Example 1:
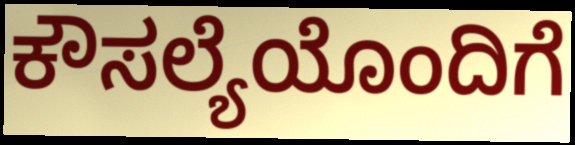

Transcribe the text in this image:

ಕೌಸಲ್ಯೆಯೊಂದಿಗೆ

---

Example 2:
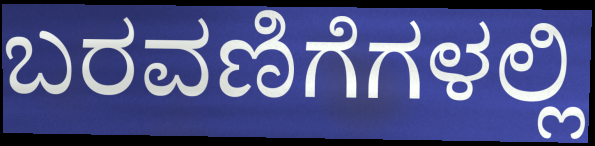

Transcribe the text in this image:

ಬರವಣಿಗೆಗಳಲ್ಲಿ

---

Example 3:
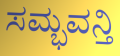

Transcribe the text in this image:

ಸಮ್ಭವನ್ತಿ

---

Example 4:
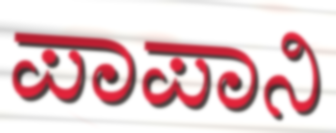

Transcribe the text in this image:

ಪಾಪಾನಿ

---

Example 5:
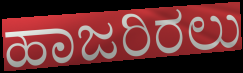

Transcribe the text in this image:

ಹಾಜರಿರಲು